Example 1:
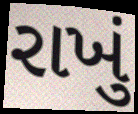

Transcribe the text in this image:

રાખું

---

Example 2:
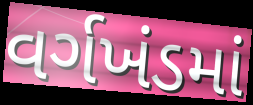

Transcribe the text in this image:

વર્ગખંડમાં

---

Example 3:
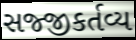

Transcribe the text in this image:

સજ્જીકર્તવ્ય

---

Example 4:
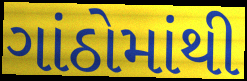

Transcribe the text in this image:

ગાંઠોમાંથી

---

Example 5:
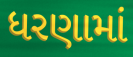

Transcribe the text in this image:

ધરણામાં